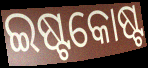
ଇଷ୍ଟକୋଷ୍ଟ